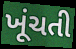
ખૂંચતી